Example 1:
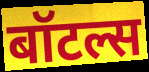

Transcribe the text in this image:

बॉटल्स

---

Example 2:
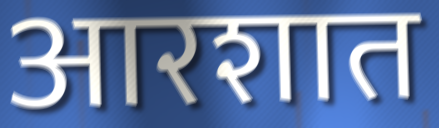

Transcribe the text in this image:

आरशात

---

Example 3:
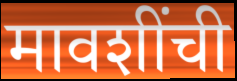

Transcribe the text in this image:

मावशींची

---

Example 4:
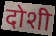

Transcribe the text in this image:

दोशी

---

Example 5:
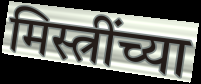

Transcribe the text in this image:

मिस्त्रींच्या